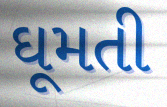
ઘૂમતી